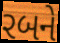
રબને